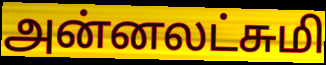
அன்னலட்சுமி